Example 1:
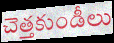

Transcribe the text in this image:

చెత్తకుండీలు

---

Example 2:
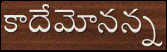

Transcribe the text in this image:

కాదేమోనన్న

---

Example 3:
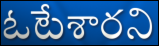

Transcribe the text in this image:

ఓటేశారని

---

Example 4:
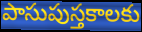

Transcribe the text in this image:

పాసుపుస్తకాలకు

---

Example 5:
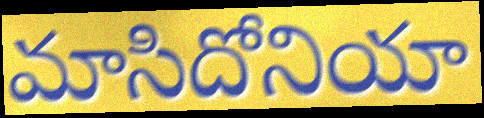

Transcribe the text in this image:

మాసిదోనియా